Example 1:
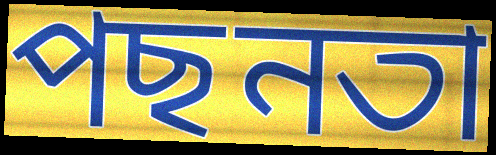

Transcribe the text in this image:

পছনতা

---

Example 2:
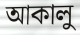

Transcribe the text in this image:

আকালু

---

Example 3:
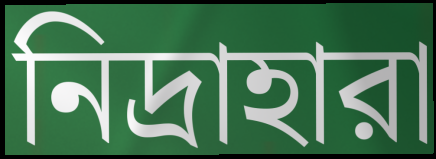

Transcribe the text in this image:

নিদ্রাহারা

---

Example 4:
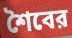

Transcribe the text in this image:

শৈবের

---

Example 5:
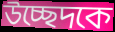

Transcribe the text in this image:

উচ্ছেদকে